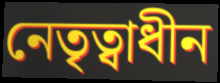
নেতৃত্বাধীন